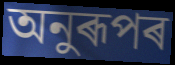
অনুৰূপৰ